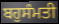
ਬਹੁਸੰਮਤੀ